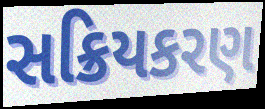
સક્રિયકરણ